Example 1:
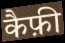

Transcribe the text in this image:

कैफ़ी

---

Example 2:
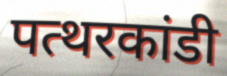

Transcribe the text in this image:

पत्थरकांडी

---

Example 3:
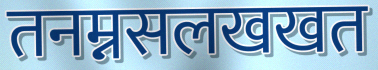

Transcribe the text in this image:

तनम्नसलखखत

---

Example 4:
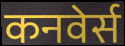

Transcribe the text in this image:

कनवेर्स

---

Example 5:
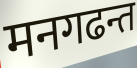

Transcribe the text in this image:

मनगढन्त